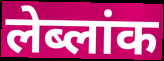
लेब्लांक